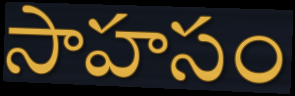
సాహసం